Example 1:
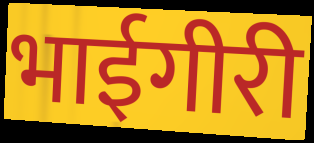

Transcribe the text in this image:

भाईगीरी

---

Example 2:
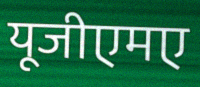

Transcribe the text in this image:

यूजीएमए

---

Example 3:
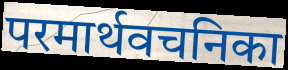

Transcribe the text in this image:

परमार्थवचनिका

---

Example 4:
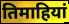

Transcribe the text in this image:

तिमाहियां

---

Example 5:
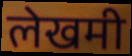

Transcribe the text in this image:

लेखमी